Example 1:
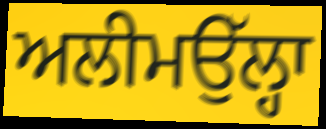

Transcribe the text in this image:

ਅਲੀਮਉੱਲ੍ਹਾ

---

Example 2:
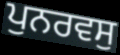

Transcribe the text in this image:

ਪੁਨਰਵਸੁ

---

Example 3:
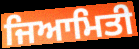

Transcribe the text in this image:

ਜਿਆਮਿਤੀ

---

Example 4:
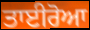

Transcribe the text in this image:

ਤਾਈਰੋਆ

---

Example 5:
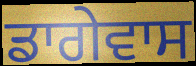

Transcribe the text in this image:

ਡਾਗੇਵਾਸ